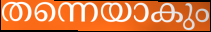
തന്നെയാകും